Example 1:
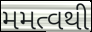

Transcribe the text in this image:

મમત્વથી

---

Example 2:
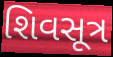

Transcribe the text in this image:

શિવસૂત્ર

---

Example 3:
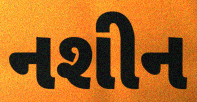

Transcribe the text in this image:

નશીન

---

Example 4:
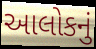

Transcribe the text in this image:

આલોકનું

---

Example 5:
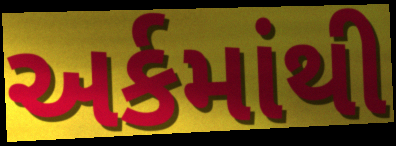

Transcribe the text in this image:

અર્કમાંથી